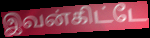
இவன்கிட்டே